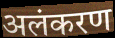
अलंकरण